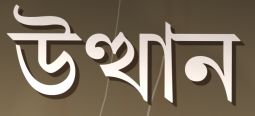
উত্থান